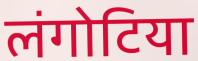
लंगोटिया